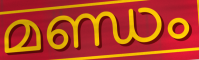
മണ്ഡം